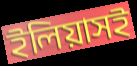
ইলিয়াসই